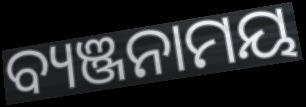
ବ୍ୟଞ୍ଜନାମୟ